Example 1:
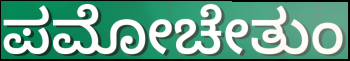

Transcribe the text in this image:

ಪಮೋಚೇತುಂ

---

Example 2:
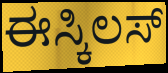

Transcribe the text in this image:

ಈಸ್ಕಿಲಸ್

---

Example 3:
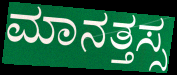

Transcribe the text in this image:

ಮಾನತ್ತಸ್ಸ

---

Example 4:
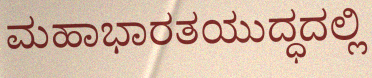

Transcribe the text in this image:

ಮಹಾಭಾರತಯುದ್ಧದಲ್ಲಿ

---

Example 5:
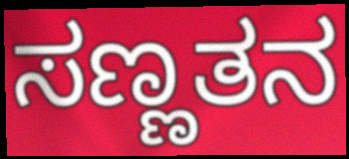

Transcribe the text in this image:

ಸಣ್ಣತನ